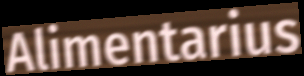
Alimentarius